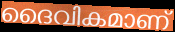
ദൈവികമാണ്